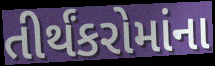
તીર્થંકરોમાંના